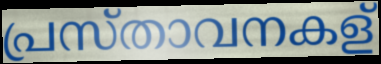
പ്രസ്താവനകള്